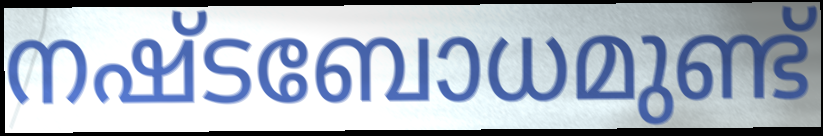
നഷ്ടബോധമുണ്ട്